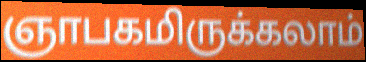
ஞாபகமிருக்கலாம்